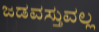
ಜಡವಸ್ತುವಲ್ಲ